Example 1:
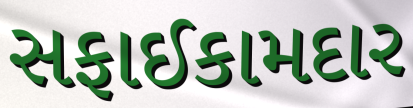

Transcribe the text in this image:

સફાઈકામદાર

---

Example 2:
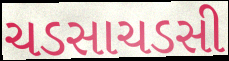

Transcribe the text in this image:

ચડસાચડસી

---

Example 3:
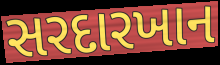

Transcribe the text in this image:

સરદારખાન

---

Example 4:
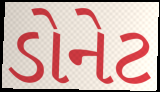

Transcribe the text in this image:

ડોનેટ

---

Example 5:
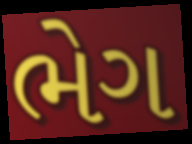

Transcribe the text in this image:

ભેગ